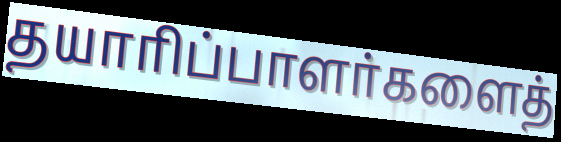
தயாரிப்பாளர்களைத்